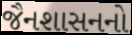
જૈનશાસનનો